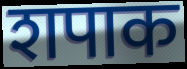
शपाक